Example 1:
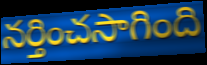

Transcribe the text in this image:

నర్తించసాగింది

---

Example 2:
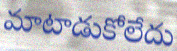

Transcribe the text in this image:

మాటాడుకోలేదు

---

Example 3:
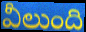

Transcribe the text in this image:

వీలుంది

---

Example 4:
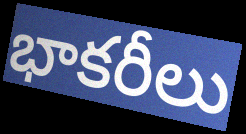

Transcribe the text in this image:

భాకరీలు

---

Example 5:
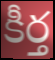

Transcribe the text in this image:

కీర్త